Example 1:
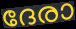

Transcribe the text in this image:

ദേരാ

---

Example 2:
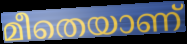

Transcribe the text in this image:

മീതെയാണ്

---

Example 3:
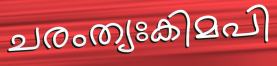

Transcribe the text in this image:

ചരംത്യഃകിമപി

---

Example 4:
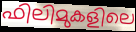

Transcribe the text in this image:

ഫിലിമുകളിലെ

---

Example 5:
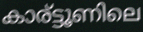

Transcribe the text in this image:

കാര്ട്ടൂണിലെ